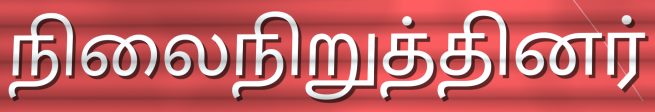
நிலைநிறுத்தினர்